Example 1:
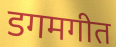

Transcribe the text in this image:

डगमगीत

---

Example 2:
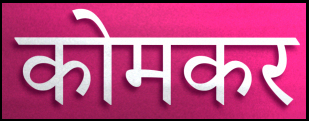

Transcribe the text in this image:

कोमकर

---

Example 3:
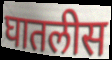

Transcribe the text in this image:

घातलीस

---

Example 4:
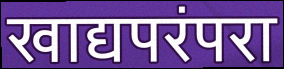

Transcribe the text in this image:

खाद्यपरंपरा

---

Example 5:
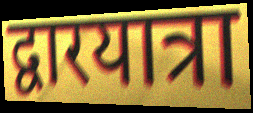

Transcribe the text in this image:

द्वारयात्रा